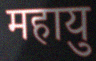
महायु